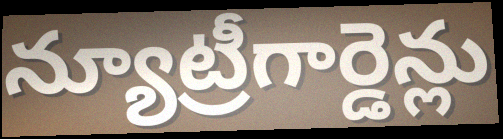
న్యూట్రీగార్డెన్లు